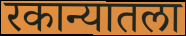
रकान्यातला